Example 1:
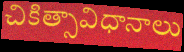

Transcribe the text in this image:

చికిత్సావిధానాలు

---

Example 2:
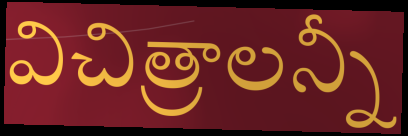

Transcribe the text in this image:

విచిత్రాలన్నీ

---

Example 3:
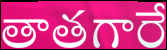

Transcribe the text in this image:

తాతగారే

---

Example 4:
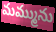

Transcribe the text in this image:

మమ్మును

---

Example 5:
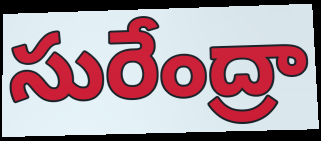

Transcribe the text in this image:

సురేంద్రా